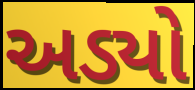
અડ્યો